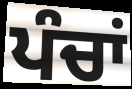
ਪੰਚਾਂ